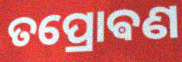
ତପ୍ରୋଵଣ